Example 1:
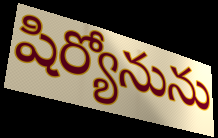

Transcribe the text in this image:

షిర్యోనును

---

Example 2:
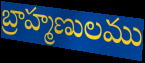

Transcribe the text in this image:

బ్రాహ్మణులము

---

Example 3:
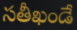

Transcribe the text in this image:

సతీఖండే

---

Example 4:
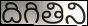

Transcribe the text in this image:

దిగితిని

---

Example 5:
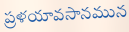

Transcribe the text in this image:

ప్రళయావసానమున